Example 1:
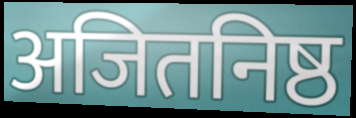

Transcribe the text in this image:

अजितनिष्ठ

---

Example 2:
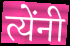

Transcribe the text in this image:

त्येंनी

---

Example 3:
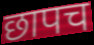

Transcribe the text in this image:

छापच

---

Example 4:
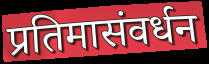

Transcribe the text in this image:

प्रतिमासंवर्धन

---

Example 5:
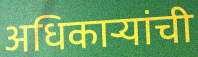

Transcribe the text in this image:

अधिकाऱ्यांची